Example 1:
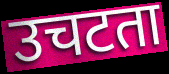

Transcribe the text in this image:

उचटता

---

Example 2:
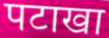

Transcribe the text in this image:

पटाखा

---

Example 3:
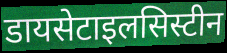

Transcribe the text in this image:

डायसेटाइलसिस्टीन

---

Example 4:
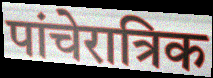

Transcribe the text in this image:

पांचेरात्रिक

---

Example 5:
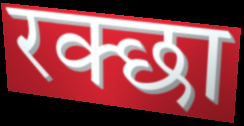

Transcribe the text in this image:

रक्छा